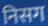
निसग